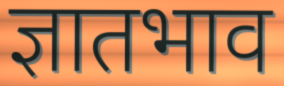
ज्ञातभाव